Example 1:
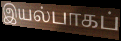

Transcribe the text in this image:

இயல்பாகப்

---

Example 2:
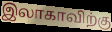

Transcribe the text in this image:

இலாகாவிற்கு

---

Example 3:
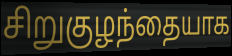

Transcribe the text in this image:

சிறுகுழந்தையாக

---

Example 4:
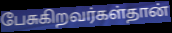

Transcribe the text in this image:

பேசுகிறவர்கள்தான்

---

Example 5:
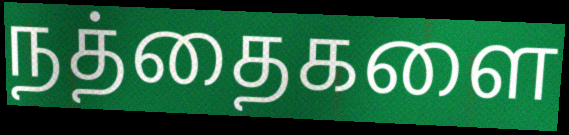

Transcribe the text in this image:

நத்தைகளை